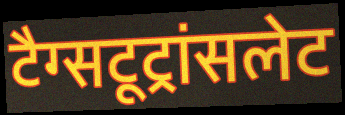
टैग्सटूट्रांसलेट